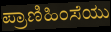
ಪ್ರಾಣಿಹಿಂಸೆಯು